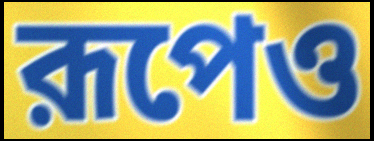
রূপেও